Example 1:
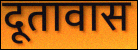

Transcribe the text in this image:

दूतावास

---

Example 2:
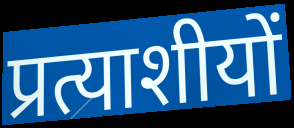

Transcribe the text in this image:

प्रत्याशीयों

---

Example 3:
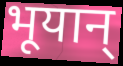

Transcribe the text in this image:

भूयान्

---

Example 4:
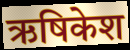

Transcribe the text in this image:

ऋषिकेश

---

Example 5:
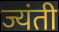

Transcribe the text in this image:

ज्यंती